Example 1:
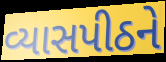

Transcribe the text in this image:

વ્યાસપીઠને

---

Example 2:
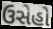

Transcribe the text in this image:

ઉસેહો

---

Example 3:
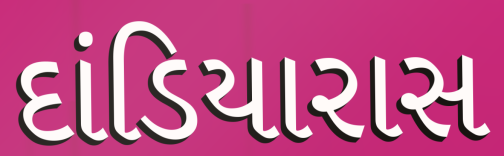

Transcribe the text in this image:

દાંડિયારાસ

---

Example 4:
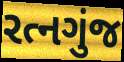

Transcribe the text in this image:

રત્નગુંજ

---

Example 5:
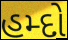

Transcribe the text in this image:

હમ્દો